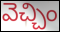
వెచ్చిం